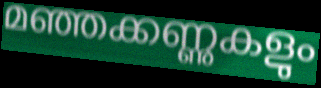
മഞ്ഞക്കണ്ണുകളും